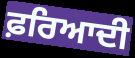
ਫ਼ਰਿਆਦੀ